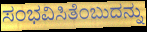
ಸಂಭವಿಸಿತೆಂಬುದನ್ನು